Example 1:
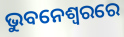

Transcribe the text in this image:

ଭୁବନେଶ୍ୱରରେ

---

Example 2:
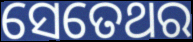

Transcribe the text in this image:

ସେତେଥର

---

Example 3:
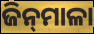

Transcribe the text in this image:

ଜିନ୍‌ମାଳା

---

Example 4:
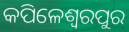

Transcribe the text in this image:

କପିଳେଶ୍ୱରପୁର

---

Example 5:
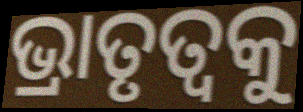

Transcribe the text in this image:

ଭ୍ରାତୃତ୍ୱକୁ